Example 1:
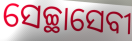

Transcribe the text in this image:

ସେଚ୍ଛାସେବୀ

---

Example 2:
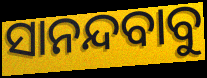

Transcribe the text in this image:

ସାନନ୍ଦବାବୁ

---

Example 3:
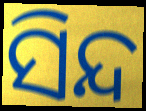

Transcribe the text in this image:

ସିନ୍ଦ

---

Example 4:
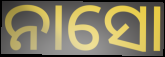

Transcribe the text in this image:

ନାସୋ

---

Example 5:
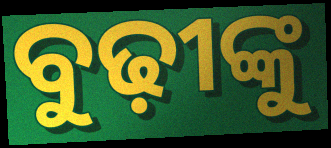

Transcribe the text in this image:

ବୁଢ଼ୀଙ୍କୁ